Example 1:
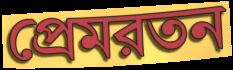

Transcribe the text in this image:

প্রেমরতন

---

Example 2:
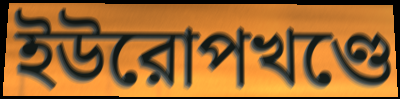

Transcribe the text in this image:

ইউরোপখণ্ডে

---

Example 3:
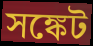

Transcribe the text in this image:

সঙ্কেট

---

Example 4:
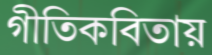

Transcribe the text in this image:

গীতিকবিতায়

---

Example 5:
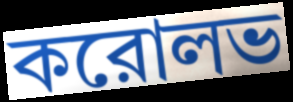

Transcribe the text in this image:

করোলভ